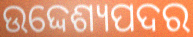
ଉଦ୍ଦେଶ୍ୟପଦର